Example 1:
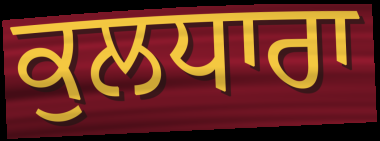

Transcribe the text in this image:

ਕੁਲਧਾਰਾ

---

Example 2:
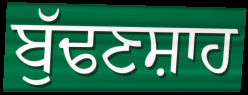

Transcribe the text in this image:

ਬੁੱਢਣਸ਼ਾਹ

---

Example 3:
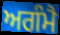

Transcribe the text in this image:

ਅਗੰਮੈ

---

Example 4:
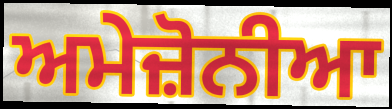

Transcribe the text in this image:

ਅਮੇਜ਼ੋਨੀਆ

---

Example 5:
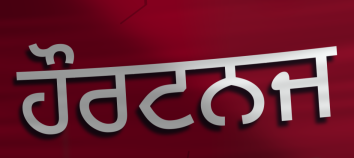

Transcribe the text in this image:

ਹੌਰਟਨਜ